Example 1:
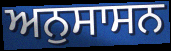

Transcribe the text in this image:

ਅਨੁਸਾਸਨ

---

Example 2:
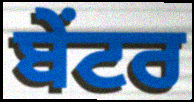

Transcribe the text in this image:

ਬੇਂਟਰ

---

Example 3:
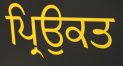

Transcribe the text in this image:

ਪ੍ਰਿਉਕਤ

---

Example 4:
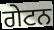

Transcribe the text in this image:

ਗੇਟਨ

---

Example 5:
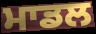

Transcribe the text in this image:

ਮਾਡਲ